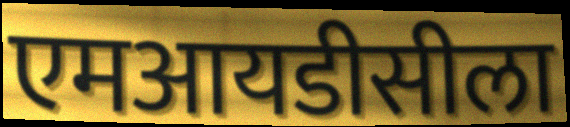
एमआयडीसीला